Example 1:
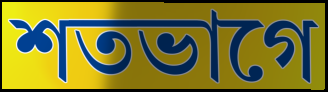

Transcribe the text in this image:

শতভাগে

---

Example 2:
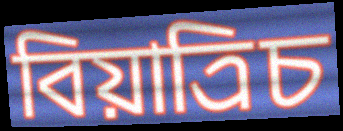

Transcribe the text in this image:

বিয়াত্রিচ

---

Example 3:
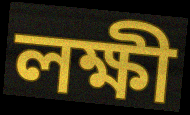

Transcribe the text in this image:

লক্ষী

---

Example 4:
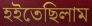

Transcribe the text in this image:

হইতেছিলাম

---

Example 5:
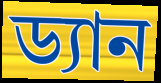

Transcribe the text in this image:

ড্যান